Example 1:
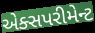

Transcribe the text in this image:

એક્સપરીમેન્ટ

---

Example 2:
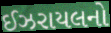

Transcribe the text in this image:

ઈઝરાયલનો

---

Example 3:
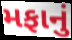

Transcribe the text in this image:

મફાનું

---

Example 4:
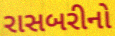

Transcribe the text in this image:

રાસબરીનો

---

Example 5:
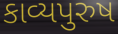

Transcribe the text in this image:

કાવ્યપુરુષ